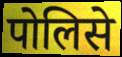
पोलिसे